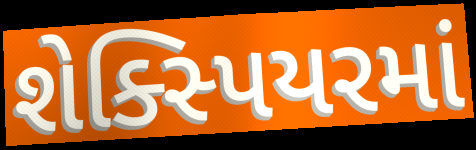
શેક્સ્પિયરમાં